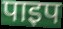
पाइप